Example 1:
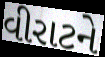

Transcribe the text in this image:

વીરાટને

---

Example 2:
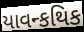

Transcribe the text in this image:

યાવન્કથિક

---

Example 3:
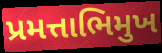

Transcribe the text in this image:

પ્રમત્તાભિમુખ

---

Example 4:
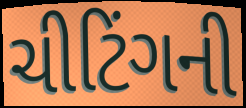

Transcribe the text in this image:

ચીટિંગની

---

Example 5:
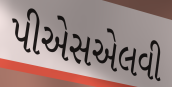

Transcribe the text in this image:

પીએસએલવી